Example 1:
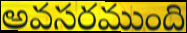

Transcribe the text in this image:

అవసరముంది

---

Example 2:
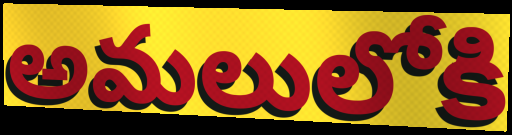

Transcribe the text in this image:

అమలులోకి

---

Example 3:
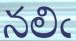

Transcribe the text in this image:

నలిఁ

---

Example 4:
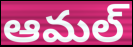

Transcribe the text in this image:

ఆమల్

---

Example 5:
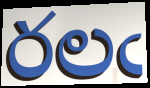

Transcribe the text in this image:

రలఁ